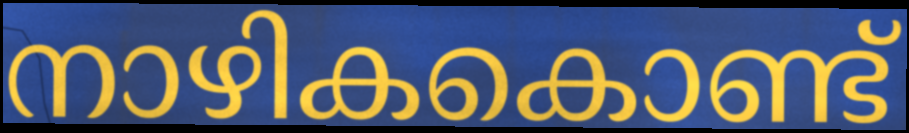
നാഴികകൊണ്ട്